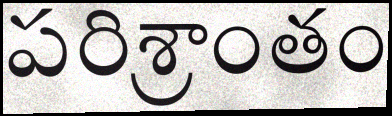
పరిశ్రాంతం